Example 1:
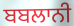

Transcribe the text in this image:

ਬਬਲਾਨੀ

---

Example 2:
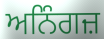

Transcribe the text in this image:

ਅਨਿੰਗਜ਼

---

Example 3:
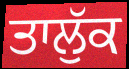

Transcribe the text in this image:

ਤਾਲੁੱਕ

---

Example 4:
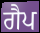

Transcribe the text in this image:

ਗੈਪ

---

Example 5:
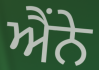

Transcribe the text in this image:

ਐਂਨੇ